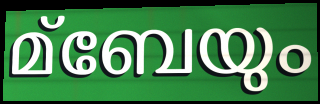
മ്ബേയും